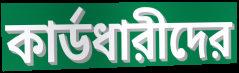
কার্ডধারীদের